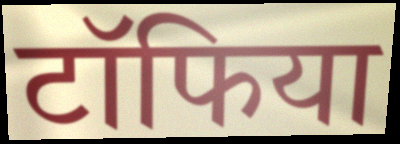
टॉफिया